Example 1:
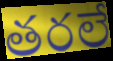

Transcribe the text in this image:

తరలే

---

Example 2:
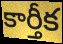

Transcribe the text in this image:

కార్తీక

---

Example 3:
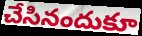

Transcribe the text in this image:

చేసినందుకూ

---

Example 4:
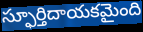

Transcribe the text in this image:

స్ఫూర్తిదాయకమైంది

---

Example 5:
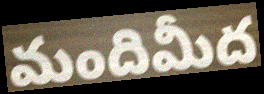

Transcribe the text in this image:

మందిమీద